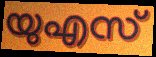
യുഎസ്